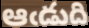
ఆఁడుది